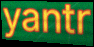
yantr